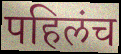
पहिलंच